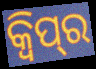
କ୍ଵିପ୍‌ର